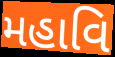
મહાવિ